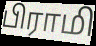
பிராமி